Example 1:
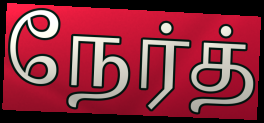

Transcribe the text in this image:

நேர்த்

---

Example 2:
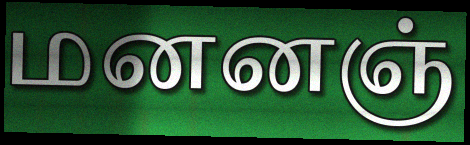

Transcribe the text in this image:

மனனஞ்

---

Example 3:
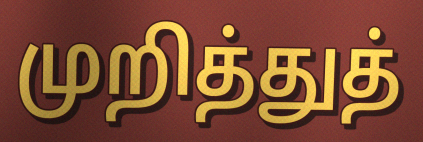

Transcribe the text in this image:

முறித்துத்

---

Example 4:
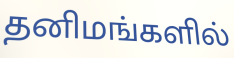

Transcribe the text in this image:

தனிமங்களில்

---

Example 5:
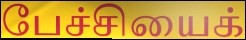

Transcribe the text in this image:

பேச்சியைக்